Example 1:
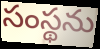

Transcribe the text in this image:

సంస్థను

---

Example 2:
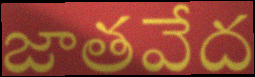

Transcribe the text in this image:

జాతవేద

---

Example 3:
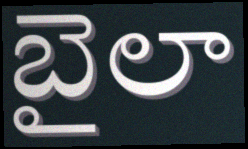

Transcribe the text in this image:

బైలా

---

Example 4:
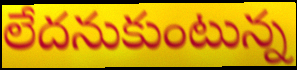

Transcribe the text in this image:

లేదనుకుంటున్న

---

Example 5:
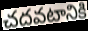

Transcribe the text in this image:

చదవటానికి